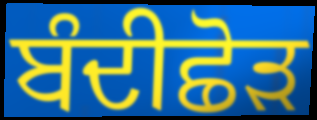
ਬੰਦੀਛੋੜ